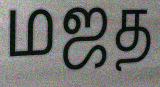
மஜத